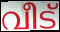
വീട്